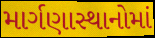
માર્ગણાસ્થાનોમાં